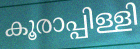
കൂരാപ്പിള്ളി